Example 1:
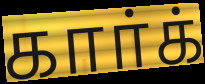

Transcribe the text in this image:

கார்க்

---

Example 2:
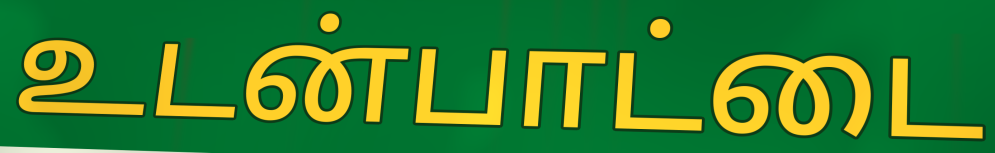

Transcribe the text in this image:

உடன்பாட்டை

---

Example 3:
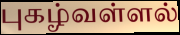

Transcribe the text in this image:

புகழ்வள்ளல்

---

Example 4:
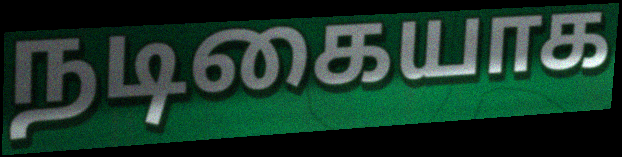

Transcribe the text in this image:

நடிகையாக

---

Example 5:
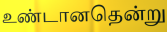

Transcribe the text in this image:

உண்டானதென்று